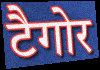
टैगोर